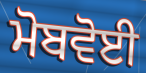
ਮੋਬਵੋਈ